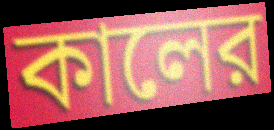
কালের